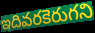
ఇదివరకెరుగని